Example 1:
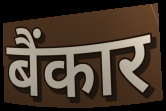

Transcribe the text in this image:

बैंकार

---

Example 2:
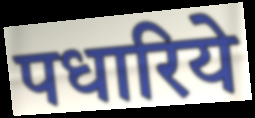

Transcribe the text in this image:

पधारिये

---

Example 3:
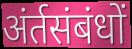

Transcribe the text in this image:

अंर्तसंबंधों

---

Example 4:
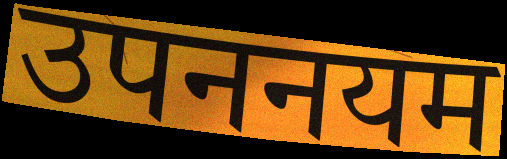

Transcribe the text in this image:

उपननयम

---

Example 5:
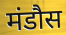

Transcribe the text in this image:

मंडौस